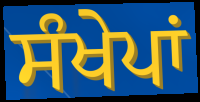
ਸੰਖੇਪਾਂ